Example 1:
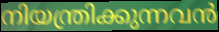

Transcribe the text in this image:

നിയന്ത്രിക്കുന്നവൻ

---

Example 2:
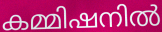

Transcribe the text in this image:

കമ്മിഷനിൽ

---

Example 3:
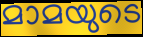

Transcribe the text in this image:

മാമയുടെ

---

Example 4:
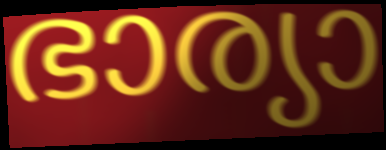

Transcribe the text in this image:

ഭാര്യാ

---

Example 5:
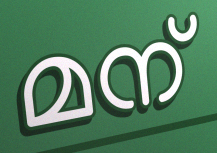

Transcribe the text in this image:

മന്